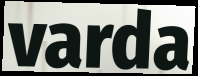
varda